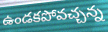
ఉండకపోవచ్చన్న